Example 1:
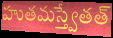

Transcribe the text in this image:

హుతమస్త్వేతత్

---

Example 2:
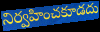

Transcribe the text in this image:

నిర్వహించకూడదు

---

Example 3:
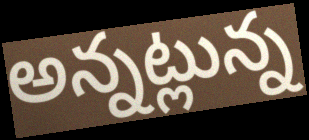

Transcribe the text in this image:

అన్నట్లున్న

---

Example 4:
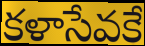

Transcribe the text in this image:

కళాసేవకే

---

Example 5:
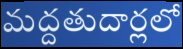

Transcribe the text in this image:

మద్దతుదార్లలో